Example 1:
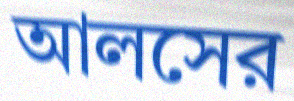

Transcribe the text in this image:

আলসের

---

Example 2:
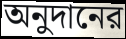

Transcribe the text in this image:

অনুদানের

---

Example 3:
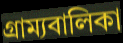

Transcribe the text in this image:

গ্রাম্যবালিকা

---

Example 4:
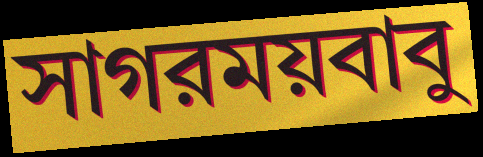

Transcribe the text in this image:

সাগরময়বাবু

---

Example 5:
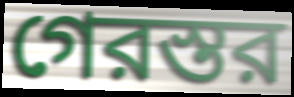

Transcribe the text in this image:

গেরস্তর